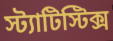
স্ট্যাটিস্টিক্স